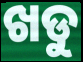
ଖଡୁ